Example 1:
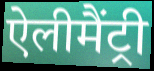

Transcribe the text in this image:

ऐलीमैंट्री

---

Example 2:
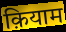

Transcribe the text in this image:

क़ियाम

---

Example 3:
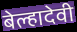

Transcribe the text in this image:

बेल्हादेवी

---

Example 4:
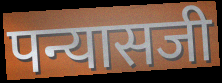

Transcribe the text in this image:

पन्यासजी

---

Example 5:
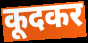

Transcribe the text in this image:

कूदकर